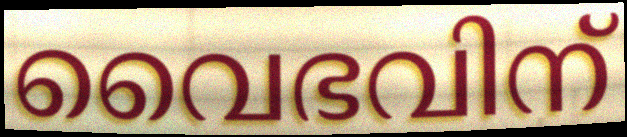
വൈഭവിന്